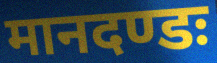
मानदण्डः